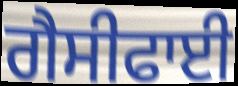
ਗੈਸੀਫਾਈ